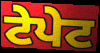
ਟੇਪੇਟ